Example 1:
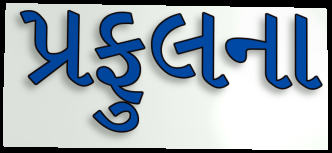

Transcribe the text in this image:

પ્રફુલના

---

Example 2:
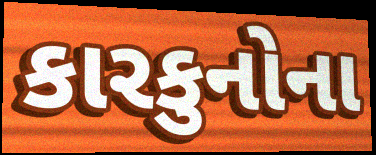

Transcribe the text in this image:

કારકુનોના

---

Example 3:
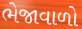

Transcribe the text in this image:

ભેજાવાળો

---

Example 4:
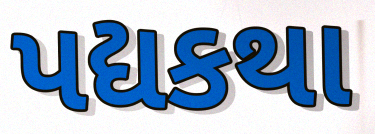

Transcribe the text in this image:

પદ્યકથા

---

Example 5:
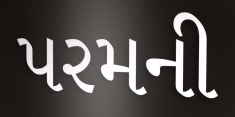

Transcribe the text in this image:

પરમની